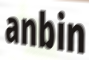
anbin